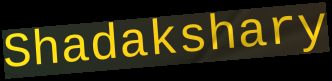
Shadakshary